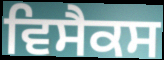
ਵਿਸੈਕਸ